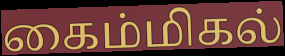
கைம்மிகல்